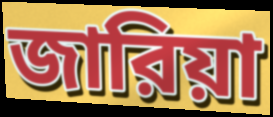
জারিয়া